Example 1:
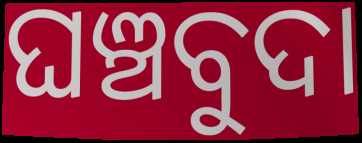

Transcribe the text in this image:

ଘଞ୍ଚବୁଦା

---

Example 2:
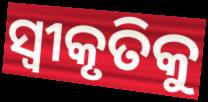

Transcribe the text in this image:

ସ୍ୱୀକୃତିକୁ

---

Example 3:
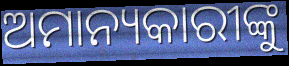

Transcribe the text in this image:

ଅମାନ୍ୟକାରୀଙ୍କୁ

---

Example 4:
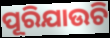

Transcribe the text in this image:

ପୂରିଯାଉଚି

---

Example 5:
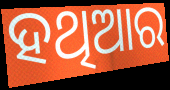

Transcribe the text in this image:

ହଥିଆର